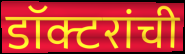
डॉक्टरांची